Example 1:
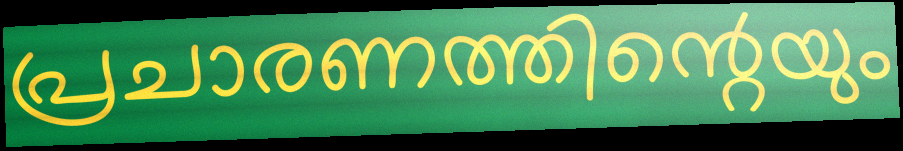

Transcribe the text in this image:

പ്രചാരണത്തിന്റെയും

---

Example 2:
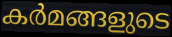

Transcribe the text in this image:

കർമങ്ങളുടെ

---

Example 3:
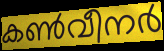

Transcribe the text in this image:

കൺവീനർ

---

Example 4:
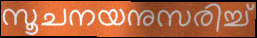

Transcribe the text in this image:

സൂചനയനുസരിച്ച്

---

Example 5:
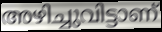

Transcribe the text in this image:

അഴിച്ചുവിട്ടാണ്